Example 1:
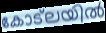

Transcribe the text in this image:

കോട്ലയിൽ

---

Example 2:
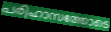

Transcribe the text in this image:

പരിഹാസത്തോടെ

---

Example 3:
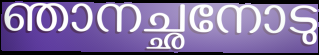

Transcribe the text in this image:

ഞാനച്ഛനോടു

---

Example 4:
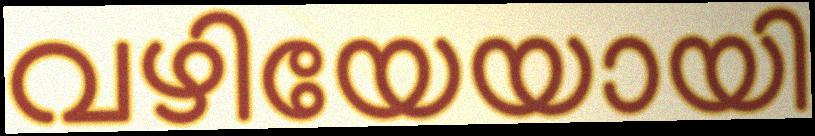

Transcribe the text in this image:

വഴിയേയായി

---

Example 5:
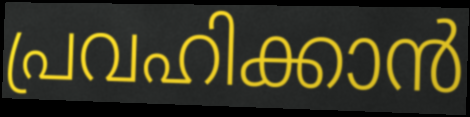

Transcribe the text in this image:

പ്രവഹിക്കാൻ